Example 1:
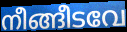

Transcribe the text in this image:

നീങ്ങീടവേ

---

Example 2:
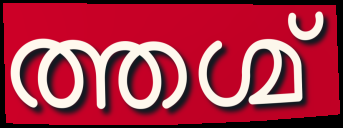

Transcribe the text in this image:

ത്തഗ്മ്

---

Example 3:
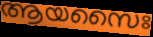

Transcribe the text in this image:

ആയസൈഃ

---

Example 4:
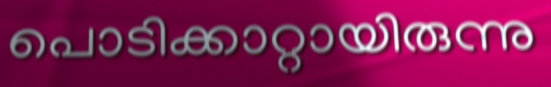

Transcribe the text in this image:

പൊടിക്കാറ്റായിരുന്നു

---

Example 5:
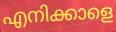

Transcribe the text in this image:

എനിക്കാളെ